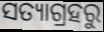
ସତ୍ୟାଗ୍ରହରୁ